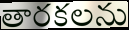
తారకలను